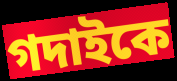
গদাইকে